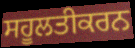
ਸਹੂਲਤੀਕਰਨ